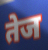
तेज